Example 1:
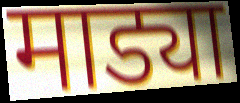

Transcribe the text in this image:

माड्या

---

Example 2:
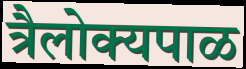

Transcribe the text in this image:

त्रैलोक्यपाळ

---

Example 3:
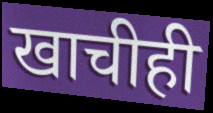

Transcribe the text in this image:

खाचीही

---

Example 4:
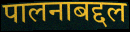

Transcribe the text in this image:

पालनाबद्दल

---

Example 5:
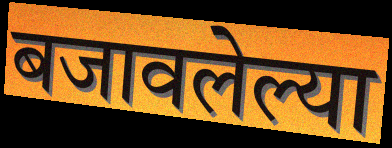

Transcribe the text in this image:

बजावलेल्या